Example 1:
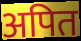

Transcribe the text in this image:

अपित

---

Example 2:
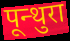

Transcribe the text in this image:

पून्थुरा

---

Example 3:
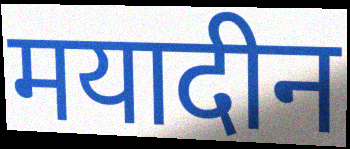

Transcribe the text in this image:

मयादीन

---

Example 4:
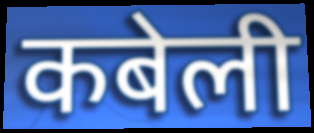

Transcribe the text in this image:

कबेली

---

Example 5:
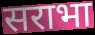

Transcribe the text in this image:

सराभा